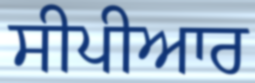
ਸੀਪੀਆਰ